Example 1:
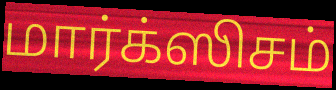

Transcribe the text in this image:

மார்க்ஸிசம்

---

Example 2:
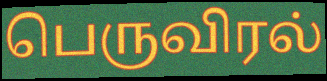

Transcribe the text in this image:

பெருவிரல்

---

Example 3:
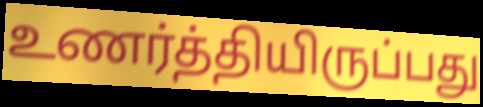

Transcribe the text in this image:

உணர்த்தியிருப்பது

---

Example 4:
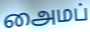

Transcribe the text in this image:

அைமப்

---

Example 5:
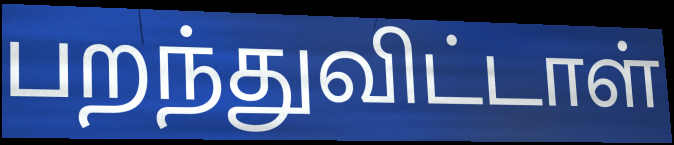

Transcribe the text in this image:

பறந்துவிட்டாள்